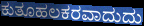
ಕುತೂಹಲಕರವಾದುದು